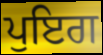
ਪੁਇਗ